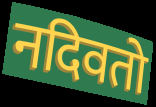
नदिवतो